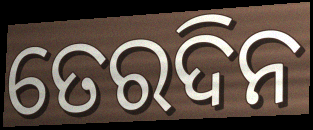
ତେରଦିନ